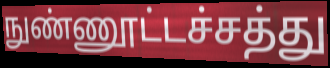
நுண்ணூட்டச்சத்து